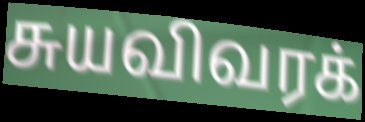
சுயவிவரக்